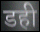
डही